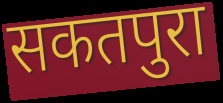
सकतपुरा